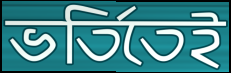
ভর্তিতেই